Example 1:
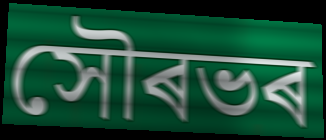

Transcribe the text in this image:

সৌৰভৰ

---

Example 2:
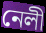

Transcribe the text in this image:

নেলী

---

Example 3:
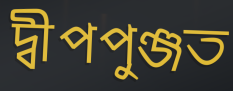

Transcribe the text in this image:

দ্বীপপুঞ্জত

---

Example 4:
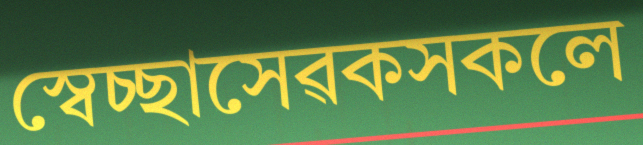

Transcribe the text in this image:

স্বেচ্ছাসেৱকসকলে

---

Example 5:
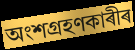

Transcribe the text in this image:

অংশগ্ৰহণকাৰীৰ